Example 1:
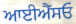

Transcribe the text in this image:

ਆਈਐੱਸਓ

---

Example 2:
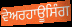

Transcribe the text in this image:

ਵੇਅਰਹਾਊਸਿੰਗ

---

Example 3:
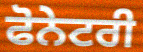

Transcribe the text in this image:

ਫੋਨੇਟਰੀ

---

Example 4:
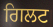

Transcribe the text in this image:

ਗਿਲਟ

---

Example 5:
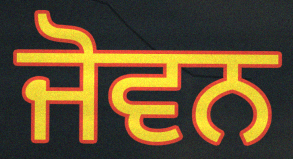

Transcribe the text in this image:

ਜੋਵਨ